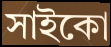
সাইকো